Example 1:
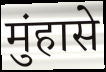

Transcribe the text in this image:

मुंहासे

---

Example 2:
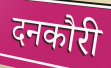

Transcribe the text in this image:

दनकौरी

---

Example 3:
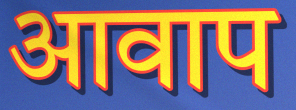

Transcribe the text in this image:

आवाप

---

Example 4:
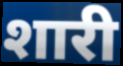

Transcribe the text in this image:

शारी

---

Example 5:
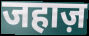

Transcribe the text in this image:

जहाज़